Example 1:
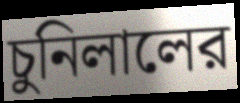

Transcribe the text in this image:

চুনিলালের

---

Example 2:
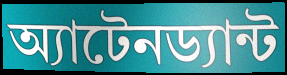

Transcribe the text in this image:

অ্যাটেনড্যান্ট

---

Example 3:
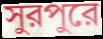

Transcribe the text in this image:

সুরপুরে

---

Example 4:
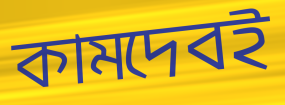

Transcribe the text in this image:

কামদেবই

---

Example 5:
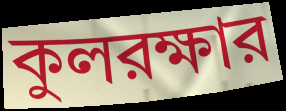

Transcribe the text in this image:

কুলরক্ষার